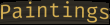
Paintings